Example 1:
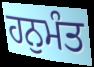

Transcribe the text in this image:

ਹਨੁਮੰਤ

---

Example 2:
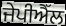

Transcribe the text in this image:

ਜੇਪੀਐੱਲ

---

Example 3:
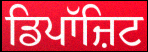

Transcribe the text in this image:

ਡਿਪਾੱਜ਼ਿਟ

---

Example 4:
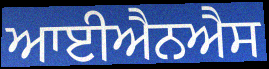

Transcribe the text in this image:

ਆਈਐਨਐਸ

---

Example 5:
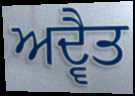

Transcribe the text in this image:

ਅਦ੍ਵੈਤ